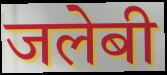
जलेबी